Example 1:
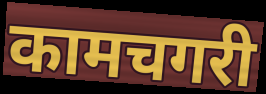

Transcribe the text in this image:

कामचगरी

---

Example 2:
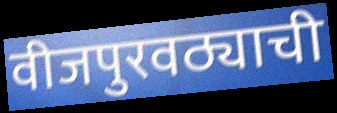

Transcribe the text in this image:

वीजपुरवठ्याची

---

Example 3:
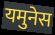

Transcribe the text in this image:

यमुनेस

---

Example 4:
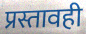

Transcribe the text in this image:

प्रस्तावही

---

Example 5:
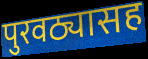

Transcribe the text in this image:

पुरवठ्यासह